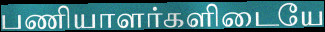
பணியாளர்களிடையே